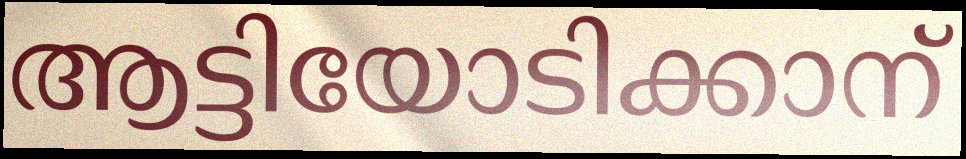
ആട്ടിയോടിക്കാന്